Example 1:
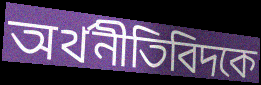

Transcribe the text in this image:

অর্থনীতিবিদকে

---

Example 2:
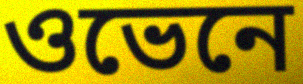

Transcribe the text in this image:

ওভেনে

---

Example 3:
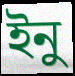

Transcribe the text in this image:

ইনু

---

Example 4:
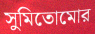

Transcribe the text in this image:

সুমিতোমোর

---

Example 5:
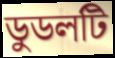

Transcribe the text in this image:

ডুডলটি